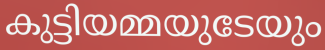
കുട്ടിയമ്മയുടേയും